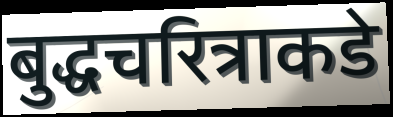
बुद्धचरित्राकडे